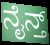
ನೈನ್ತ್